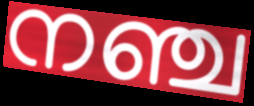
നഞ്ച